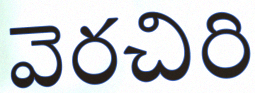
వెరచిరి